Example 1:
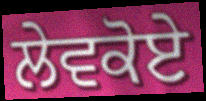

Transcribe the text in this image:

ਲੇਵਕੋਏ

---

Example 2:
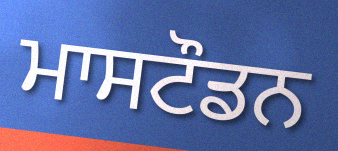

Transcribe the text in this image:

ਮਾਸਟੌਡਨ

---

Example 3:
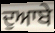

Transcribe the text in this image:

ਦੁਆਬੇ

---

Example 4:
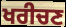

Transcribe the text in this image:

ਖਰੀਚਣ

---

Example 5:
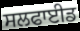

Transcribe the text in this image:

ਸਲਫਾਈਡ